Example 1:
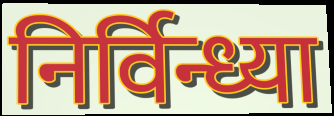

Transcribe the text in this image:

निर्विन्ध्या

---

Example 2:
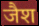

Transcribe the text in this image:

जैश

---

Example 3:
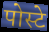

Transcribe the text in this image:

पोस्टे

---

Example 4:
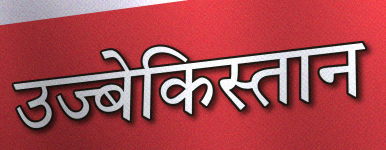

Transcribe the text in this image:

उज्बेकिस्तान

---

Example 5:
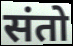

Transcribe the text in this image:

संतो